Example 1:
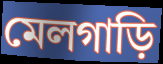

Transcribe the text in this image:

মেলগাড়ি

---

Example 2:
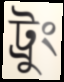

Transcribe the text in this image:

ট্রুং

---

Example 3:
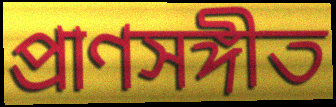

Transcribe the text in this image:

প্রাণসঙ্গীত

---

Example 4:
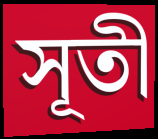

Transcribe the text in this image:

সূতী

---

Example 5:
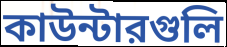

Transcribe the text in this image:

কাউন্টারগুলি